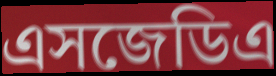
এসজেডিএ